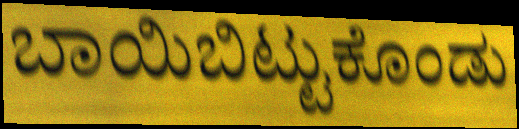
ಬಾಯಿಬಿಟ್ಟುಕೊಂಡು